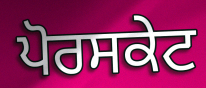
ਪੋਰਸਕੇਟ